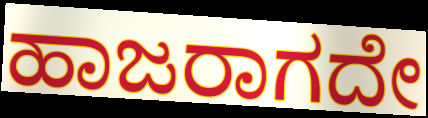
ಹಾಜರಾಗದೇ